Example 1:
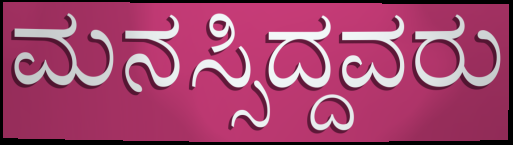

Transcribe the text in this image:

ಮನಸ್ಸಿದ್ದವರು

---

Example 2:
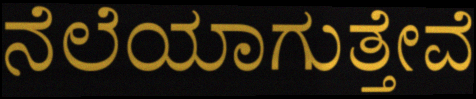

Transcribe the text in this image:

ನೆಲೆಯಾಗುತ್ತೇವೆ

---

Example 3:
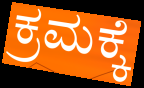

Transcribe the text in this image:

ಕ್ರಮಕ್ಕೆ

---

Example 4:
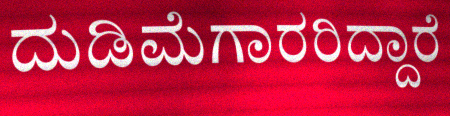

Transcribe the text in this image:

ದುಡಿಮೆಗಾರರಿದ್ದಾರೆ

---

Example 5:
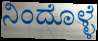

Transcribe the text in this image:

ನಿಂದೊಳ್ಳೆ